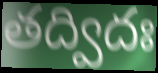
తద్విదః